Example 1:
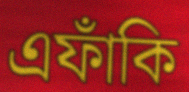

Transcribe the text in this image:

এফাঁকি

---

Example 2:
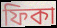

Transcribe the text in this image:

ফিকা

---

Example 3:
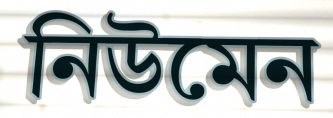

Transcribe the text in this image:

নিউমেন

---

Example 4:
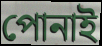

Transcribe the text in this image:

পোনাই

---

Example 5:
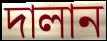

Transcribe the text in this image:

দালান